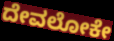
ದೇವಲೋಕೇ